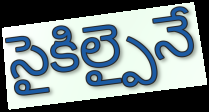
సైకిల్పైనే